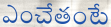
ఎంచేతంటే